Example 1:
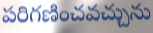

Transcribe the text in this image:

పరిగణించవచ్చును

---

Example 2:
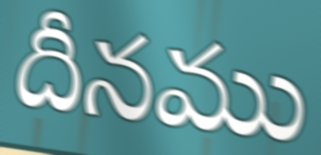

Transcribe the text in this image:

దీనము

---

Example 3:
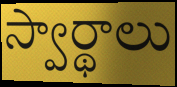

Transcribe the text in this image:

స్వార్థాలు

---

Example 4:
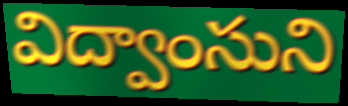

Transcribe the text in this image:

విద్వాంసుని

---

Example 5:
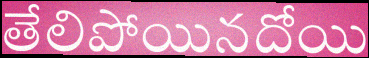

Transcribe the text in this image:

తేలిపోయినదోయి